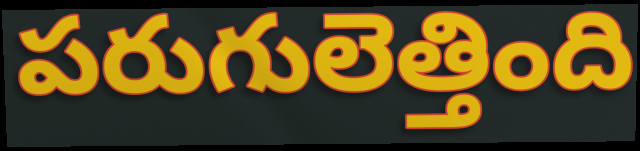
పరుగులెత్తింది